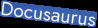
Docusaurus